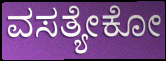
ವಸತ್ಯೇಕೋ